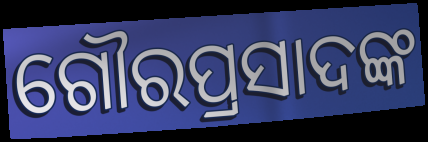
ଗୌରପ୍ରସାଦଙ୍କ